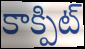
కాక్పిట్